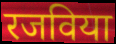
रजविया